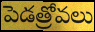
పెడత్రోవలు